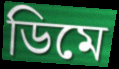
ডিমে